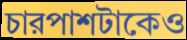
চারপাশটাকেও